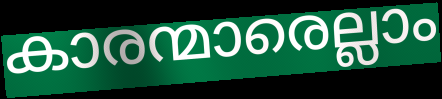
കാരന്മാരെല്ലാം